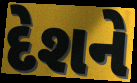
દેશને